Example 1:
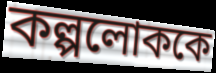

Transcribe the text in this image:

কল্পলোককে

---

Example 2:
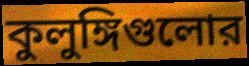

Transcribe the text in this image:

কুলুঙ্গিগুলোর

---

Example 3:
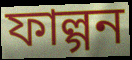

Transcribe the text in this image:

ফাল্গন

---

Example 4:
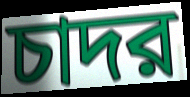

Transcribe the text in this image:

চাদর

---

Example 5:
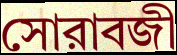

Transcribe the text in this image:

সোরাবজী